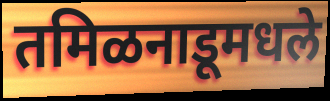
तमिळनाडूमधले